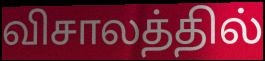
விசாலத்தில்